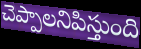
చెప్పాలనిపిస్తుంది